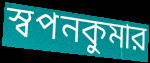
স্বপনকুমার